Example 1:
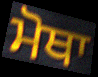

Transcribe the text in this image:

ਮੋਥਾ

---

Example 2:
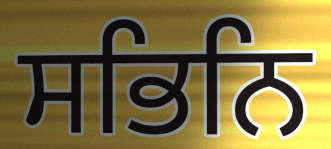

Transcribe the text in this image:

ਸਭਿਨਿ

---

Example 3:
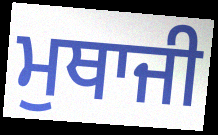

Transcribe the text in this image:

ਮੁਥਾਜੀ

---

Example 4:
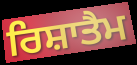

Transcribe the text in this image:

ਰਿਸ਼ਾਤੈਮ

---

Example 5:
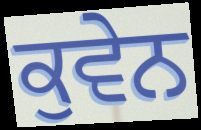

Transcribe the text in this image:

ਕੁਵੇਨ